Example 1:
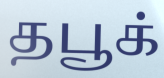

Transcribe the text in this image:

தபூக்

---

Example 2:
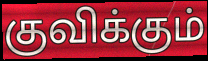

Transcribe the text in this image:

குவிக்கும்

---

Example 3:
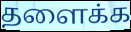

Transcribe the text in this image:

தளைக்க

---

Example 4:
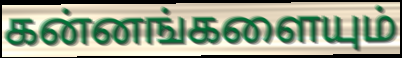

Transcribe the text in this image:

கன்னங்களையும்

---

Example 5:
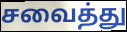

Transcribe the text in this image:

சவைத்து